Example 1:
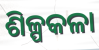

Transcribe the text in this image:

ଶିଳ୍ପକଳା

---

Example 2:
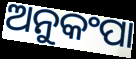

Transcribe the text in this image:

ଅନୁକଂପା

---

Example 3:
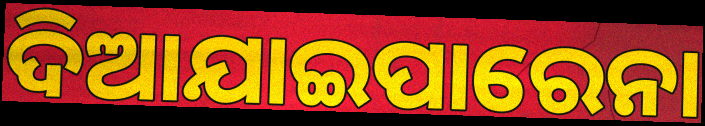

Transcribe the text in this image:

ଦିଆଯାଇପାରେନା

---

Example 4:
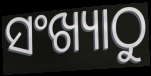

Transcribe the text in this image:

ସଂଖ୍ୟାଠୁ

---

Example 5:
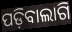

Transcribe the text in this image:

ପଡ଼ିବାଲାଗି